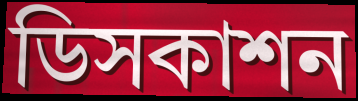
ডিসকাশন